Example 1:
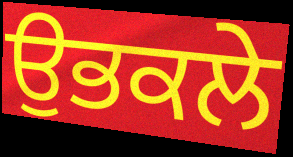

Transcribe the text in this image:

ਉਭਕਲੇ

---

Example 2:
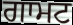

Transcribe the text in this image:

ਗਾਮਟ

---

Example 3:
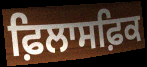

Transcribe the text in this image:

ਫ਼ਿਲਾਸਫ਼ਿਕ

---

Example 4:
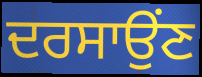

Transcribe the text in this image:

ਦਰਸਾਉਂਣ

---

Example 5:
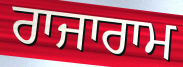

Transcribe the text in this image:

ਰਾਜਾਰਾਮ